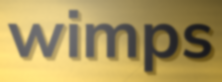
wimps